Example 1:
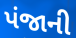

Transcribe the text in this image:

પંજાની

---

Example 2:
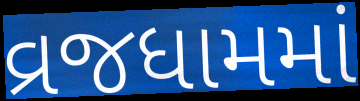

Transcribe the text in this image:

વ્રજધામમાં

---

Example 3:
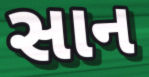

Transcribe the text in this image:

સાન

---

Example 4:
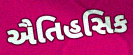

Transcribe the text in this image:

ઐતિહસિક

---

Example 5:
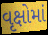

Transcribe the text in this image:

વૃક્ષોમાં